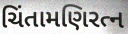
ચિંતામણિરત્ન